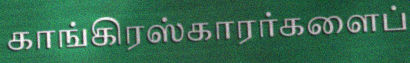
காங்கிரஸ்காரர்களைப்